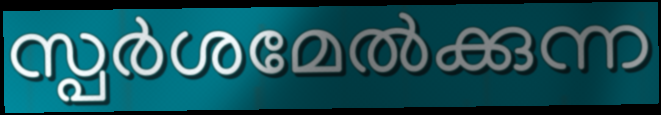
സ്പർശമേൽക്കുന്ന